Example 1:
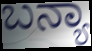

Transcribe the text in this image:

ಬನ್ಯಾ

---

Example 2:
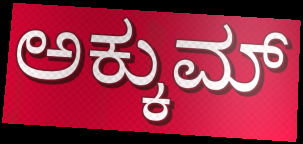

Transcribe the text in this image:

ಅಕ್ಕುಮ್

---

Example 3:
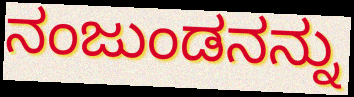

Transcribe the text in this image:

ನಂಜುಂಡನನ್ನು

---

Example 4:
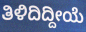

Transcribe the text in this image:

ತಿಳಿದಿದ್ದೀಯೆ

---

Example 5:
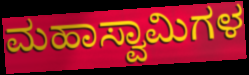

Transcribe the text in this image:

ಮಹಾಸ್ವಾಮಿಗಳ